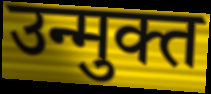
उन्मुक्त